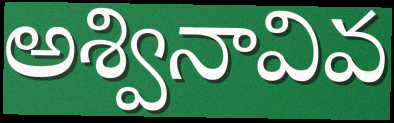
అశ్వినావివ